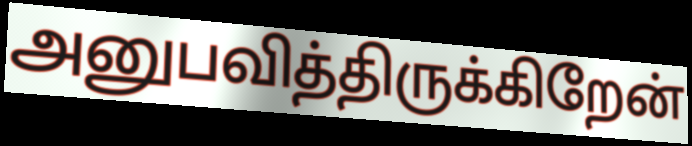
அனுபவித்திருக்கிறேன்